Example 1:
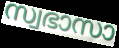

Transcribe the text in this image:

സ്വഭാസാ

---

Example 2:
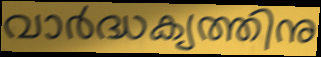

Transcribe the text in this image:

വാർദ്ധക്യത്തിനു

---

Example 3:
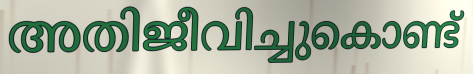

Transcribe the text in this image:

അതിജീവിച്ചുകൊണ്ട്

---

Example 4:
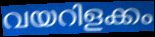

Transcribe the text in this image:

വയറിളക്കം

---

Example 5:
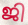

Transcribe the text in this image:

ജി